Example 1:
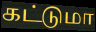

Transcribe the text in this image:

கட்டுமா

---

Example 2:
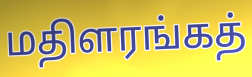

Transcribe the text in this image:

மதிளரங்கத்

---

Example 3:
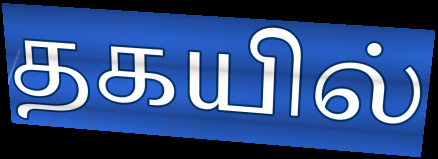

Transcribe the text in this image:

தகயில்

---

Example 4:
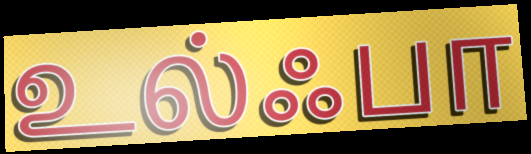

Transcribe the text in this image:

உல்ஃபா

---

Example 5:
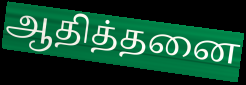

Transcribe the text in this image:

ஆதித்தனை